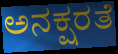
ಅನಕ್ಷರತೆ